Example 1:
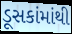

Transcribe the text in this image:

ડૂસકાંમાંથી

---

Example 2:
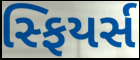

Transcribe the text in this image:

સ્ફિયર્સ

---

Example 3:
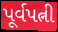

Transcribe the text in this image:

પૂર્વપત્ની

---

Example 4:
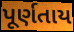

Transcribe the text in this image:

પૂર્ણતાય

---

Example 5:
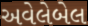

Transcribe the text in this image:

અવેલેબેલ